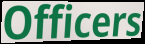
Officers